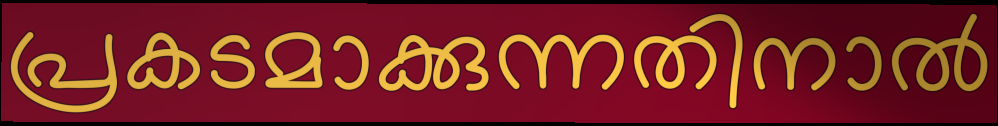
പ്രകടമാക്കുന്നതിനാൽ